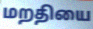
மறதியை